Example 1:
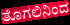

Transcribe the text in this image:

ತೊಗಲಿನಿಂದ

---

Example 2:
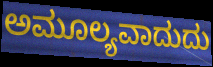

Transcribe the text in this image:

ಅಮೂಲ್ಯವಾದುದು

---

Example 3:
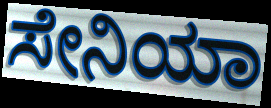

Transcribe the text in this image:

ಸೇನಿಯಾ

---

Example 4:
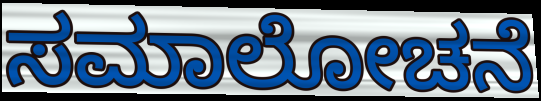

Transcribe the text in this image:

ಸಮಾಲೋಚನೆ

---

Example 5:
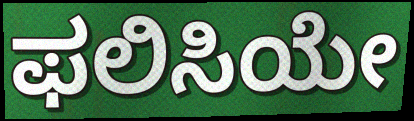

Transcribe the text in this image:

ಫಲಿಸಿಯೇ